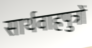
सार्थवाहपुत्रों